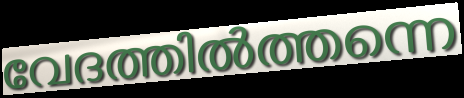
വേദത്തിൽത്തന്നെ